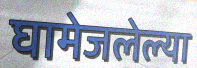
घामेजलेल्या